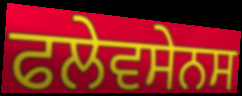
ਫਲੇਵਸੇਨਸ